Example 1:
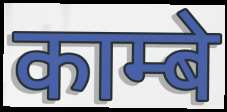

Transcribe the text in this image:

काम्बे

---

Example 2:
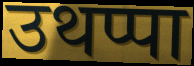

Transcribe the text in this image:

उथप्पा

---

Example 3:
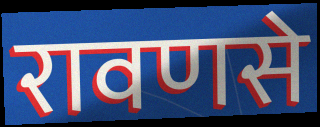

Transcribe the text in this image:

रावणसे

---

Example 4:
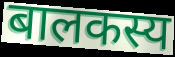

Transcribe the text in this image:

बालकस्य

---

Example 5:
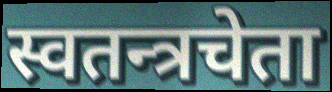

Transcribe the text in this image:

स्वतन्त्रचेता